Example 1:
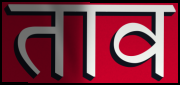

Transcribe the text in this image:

ताव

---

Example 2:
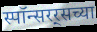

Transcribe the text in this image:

स्पॉन्सरर्सच्या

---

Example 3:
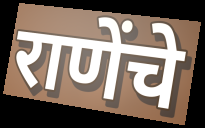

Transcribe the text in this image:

राणेंचे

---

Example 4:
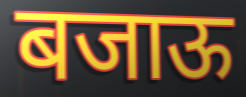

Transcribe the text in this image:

बजाऊ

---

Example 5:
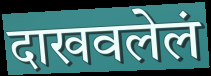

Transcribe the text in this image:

दाखवलेलं